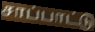
சாப்பாட்டு